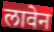
लावेन